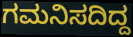
ಗಮನಿಸದಿದ್ದ